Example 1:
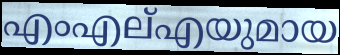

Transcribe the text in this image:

എംഎല്എയുമായ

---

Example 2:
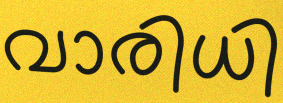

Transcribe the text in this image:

വാരിധി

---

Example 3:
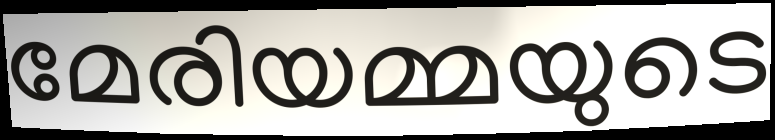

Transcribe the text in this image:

മേരിയമ്മയുടെ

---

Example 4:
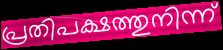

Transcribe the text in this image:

പ്രതിപക്ഷത്തുനിന്ന്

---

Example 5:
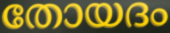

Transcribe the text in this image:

തോയദം